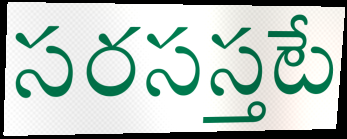
సరసస్తటే